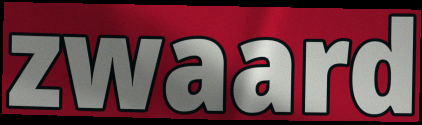
zwaard